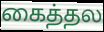
கைத்தல